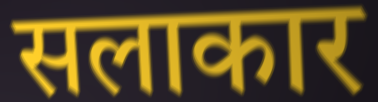
सलाकार